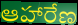
ఆహారేణ